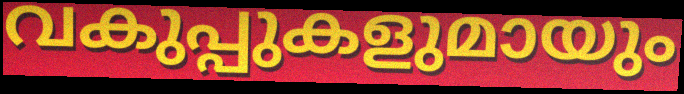
വകുപ്പുകളുമായും